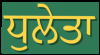
ਧੁਲੇਤਾ